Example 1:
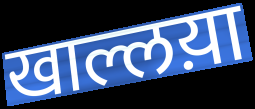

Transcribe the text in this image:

खाल्लय़ा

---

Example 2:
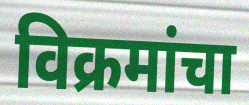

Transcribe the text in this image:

विक्रमांचा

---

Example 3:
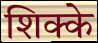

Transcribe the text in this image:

शिक्के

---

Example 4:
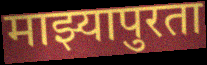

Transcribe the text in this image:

माझ्यापुरता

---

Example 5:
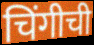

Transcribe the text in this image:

चिंगीची